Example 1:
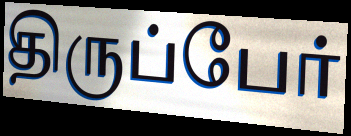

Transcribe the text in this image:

திருப்பேர்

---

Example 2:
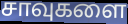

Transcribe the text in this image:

சாவுகளை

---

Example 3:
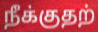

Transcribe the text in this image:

நீக்குதற்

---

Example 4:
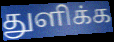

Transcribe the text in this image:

துளிக்க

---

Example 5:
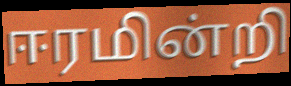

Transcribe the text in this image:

ஈரமின்றி